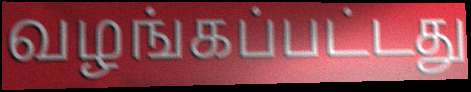
வழங்கப்பட்டது